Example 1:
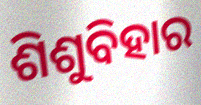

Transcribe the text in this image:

ଶିଶୁବିହାର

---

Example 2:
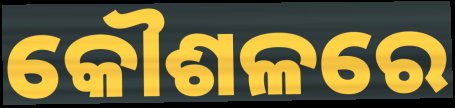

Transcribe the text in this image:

କୌଶଳରେ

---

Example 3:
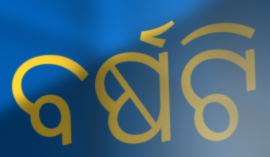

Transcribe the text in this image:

ବର୍ଷଟି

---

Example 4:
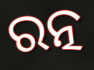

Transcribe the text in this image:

ରତ୍ନ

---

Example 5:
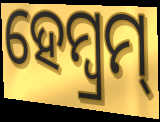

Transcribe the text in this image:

ହେମ୍ବ୍ରମ୍